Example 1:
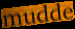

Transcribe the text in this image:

mudde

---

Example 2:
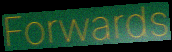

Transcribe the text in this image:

Forwards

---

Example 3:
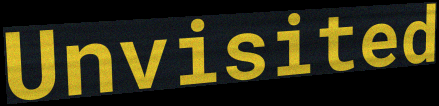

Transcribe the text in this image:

Unvisited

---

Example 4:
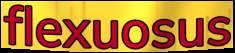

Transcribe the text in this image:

flexuosus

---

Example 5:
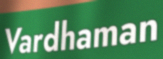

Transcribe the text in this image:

Vardhaman